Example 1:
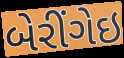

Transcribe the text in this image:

બેરીંગેઇ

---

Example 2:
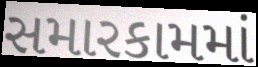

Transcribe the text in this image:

સમારકામમાં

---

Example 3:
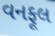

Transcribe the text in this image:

વનફૂલ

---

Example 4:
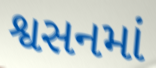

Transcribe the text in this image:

શ્વસનમાં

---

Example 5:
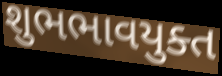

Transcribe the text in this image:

શુભભાવયુક્ત